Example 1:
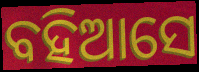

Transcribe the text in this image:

ବହିଆସେ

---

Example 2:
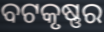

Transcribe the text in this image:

ବଟକୃଷ୍ଣର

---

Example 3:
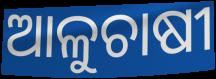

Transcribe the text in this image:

ଆଳୁଚାଷୀ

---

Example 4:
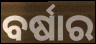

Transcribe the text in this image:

ବର୍ଷାର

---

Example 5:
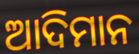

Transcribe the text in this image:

ଆଦିମାନ